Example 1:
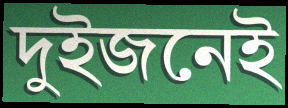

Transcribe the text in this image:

দুইজনেই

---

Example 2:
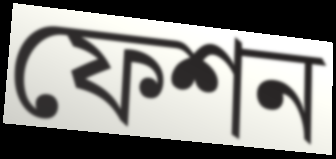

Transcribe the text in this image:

ফেশন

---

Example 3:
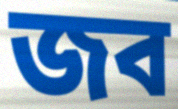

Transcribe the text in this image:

জব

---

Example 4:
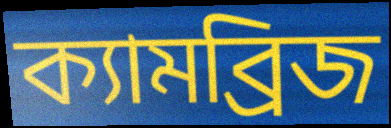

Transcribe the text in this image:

ক্যামব্রিজ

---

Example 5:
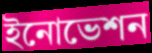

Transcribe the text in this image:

ইনোভেশন